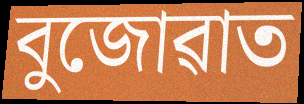
বুজোৱাত